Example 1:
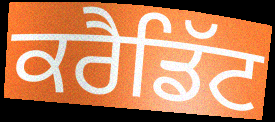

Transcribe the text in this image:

ਕਰੈਡਿੱਟ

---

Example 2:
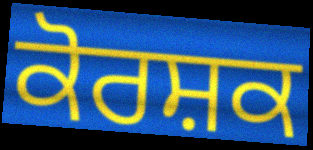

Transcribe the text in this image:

ਕੋਰਸ਼ਕ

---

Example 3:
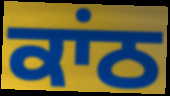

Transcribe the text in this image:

ਕਾਂਠ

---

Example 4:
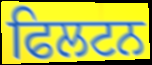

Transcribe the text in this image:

ਫਿਲਟਨ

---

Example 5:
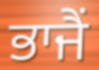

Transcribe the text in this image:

ਭਾਜੈਂ